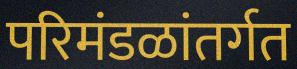
परिमंडळांतर्गत